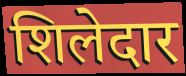
शिलेदार